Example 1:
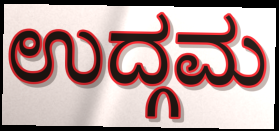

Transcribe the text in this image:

ಉದ್ಗಮ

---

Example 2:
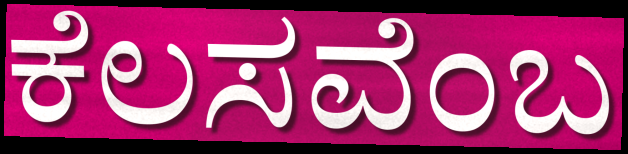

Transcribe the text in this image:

ಕೆಲಸವೆಂಬ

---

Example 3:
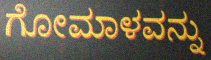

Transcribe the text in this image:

ಗೋಮಾಳವನ್ನು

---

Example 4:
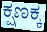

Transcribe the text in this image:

ಕ್ಷಣಕ್ಕ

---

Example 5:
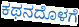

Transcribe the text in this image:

ಕಥನದೊಳಗೆ